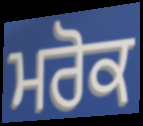
ਮਰੋਕ